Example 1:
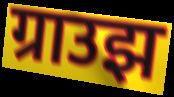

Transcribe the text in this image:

ग्राउझ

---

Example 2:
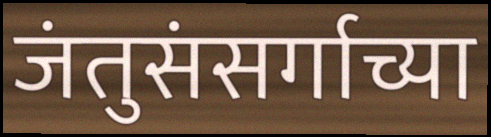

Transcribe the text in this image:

जंतुसंसर्गाच्या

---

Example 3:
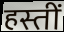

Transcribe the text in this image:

हस्तीं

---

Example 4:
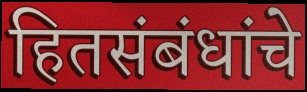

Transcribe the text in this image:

हितसंबंधांचे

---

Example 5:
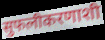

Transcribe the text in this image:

सुफलीकरणाशी